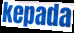
kepada